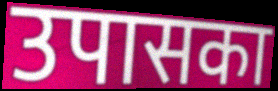
उपासका